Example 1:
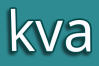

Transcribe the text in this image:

kva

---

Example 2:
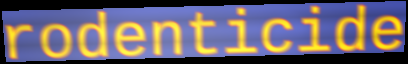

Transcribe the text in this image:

rodenticide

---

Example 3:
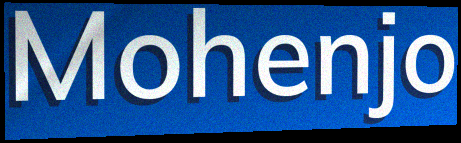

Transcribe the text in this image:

Mohenjo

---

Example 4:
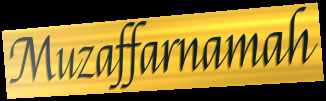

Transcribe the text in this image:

Muzaffarnamah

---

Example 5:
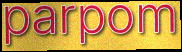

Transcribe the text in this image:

parpom